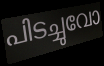
പിടച്ചുവോ